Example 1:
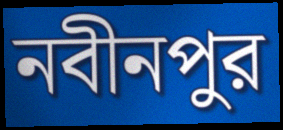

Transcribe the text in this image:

নবীনপুর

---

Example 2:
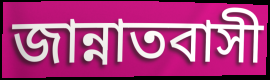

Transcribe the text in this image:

জান্নাতবাসী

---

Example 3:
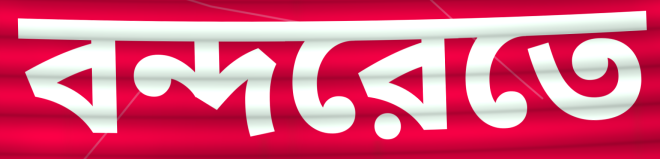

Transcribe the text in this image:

বন্দরেতে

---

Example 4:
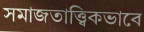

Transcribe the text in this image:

সমাজতাত্ত্বিকভাবে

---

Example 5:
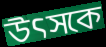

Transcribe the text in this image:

উৎসকে